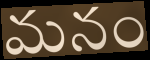
మనం